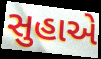
સુહાએ